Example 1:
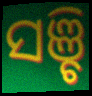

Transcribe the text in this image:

ସଞ୍ଚି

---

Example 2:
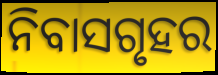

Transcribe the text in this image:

ନିବାସଗୃହର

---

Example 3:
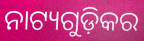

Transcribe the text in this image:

ନାଟ୍ୟଗୁଡ଼ିକର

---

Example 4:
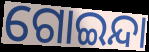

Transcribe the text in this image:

ଗୋଇନ୍ଦା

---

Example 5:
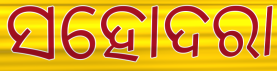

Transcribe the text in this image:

ସହୋଦରା